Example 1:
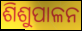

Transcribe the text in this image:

ଶିଶୁପାଳନ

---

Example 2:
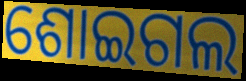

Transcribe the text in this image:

ଶୋଇଗଲ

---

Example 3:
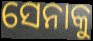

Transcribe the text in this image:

ସେନାକୁ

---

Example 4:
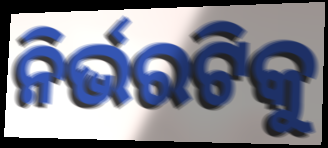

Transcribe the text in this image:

ନିର୍ଭରଟିକୁ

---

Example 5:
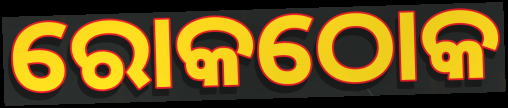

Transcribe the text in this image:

ରୋକଠୋକ